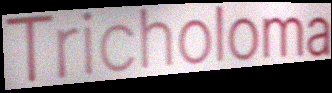
Tricholoma